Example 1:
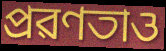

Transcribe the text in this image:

প্ৰৱণতাও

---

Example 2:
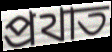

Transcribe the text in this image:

প্ৰথাত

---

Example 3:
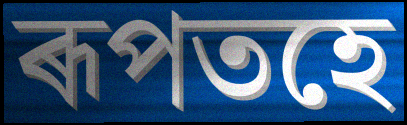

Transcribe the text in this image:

ৰূপতহে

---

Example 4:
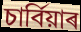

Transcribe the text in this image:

চাৰ্বিয়াৰ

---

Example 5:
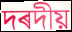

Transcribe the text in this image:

দৰদীয়